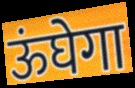
ऊंघेगा